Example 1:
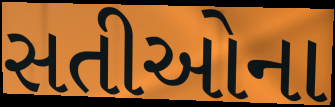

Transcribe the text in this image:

સતીઓના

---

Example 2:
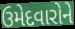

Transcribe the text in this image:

ઉમેદવારોને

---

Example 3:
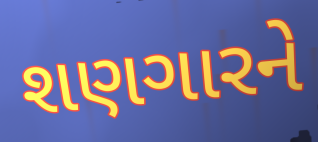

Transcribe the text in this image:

શણગારને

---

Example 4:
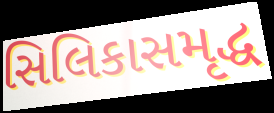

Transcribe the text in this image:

સિલિકાસમૃદ્ધ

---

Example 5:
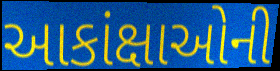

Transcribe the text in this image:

આકાંક્ષાઓની